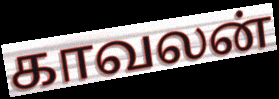
காவலன்